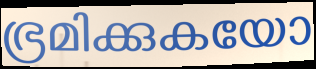
ഭ്രമിക്കുകയോ